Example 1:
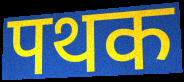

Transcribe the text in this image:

पथक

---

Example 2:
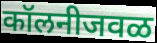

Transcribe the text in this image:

कॉलनीजवळ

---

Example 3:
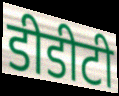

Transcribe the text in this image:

डीडीटी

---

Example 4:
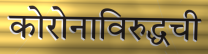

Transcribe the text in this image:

कोरोनाविरुद्धची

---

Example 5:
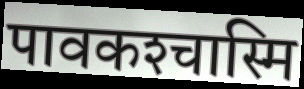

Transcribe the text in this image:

पावकश्चास्मि